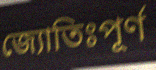
জ্যোতিঃপূর্ণ